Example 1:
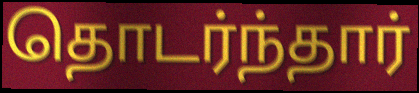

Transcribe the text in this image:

தொடர்ந்தார்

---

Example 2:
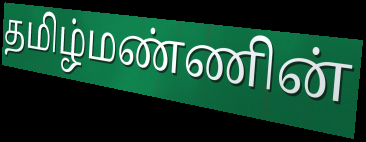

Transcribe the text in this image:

தமிழ்மண்ணின்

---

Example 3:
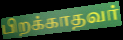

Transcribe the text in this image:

பிறக்காதவர்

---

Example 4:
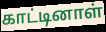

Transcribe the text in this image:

காட்டினாள்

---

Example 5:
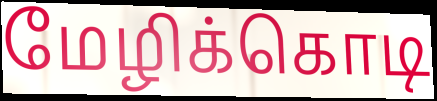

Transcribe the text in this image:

மேழிக்கொடி